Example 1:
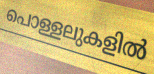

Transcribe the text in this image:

പൊള്ളലുകളിൽ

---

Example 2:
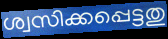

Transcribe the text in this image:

ശ്വസിക്കപ്പെട്ടതു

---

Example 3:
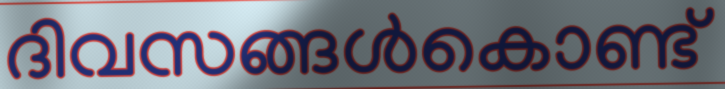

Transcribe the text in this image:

ദിവസങ്ങൾകൊണ്ട്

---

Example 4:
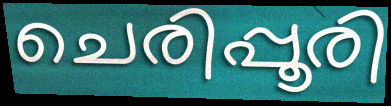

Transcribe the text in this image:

ചെരിപ്പൂരി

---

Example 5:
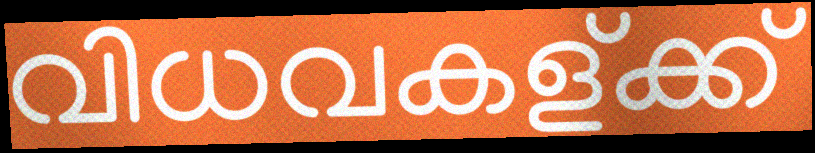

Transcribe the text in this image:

വിധവകള്ക്ക്